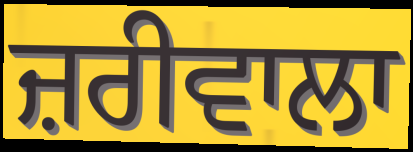
ਜ਼ਰੀਵਾਲਾ